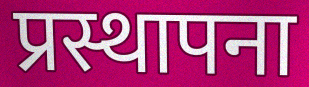
प्रस्थापना